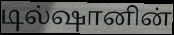
டில்ஷானின்